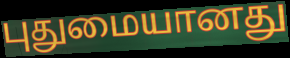
புதுமையானது